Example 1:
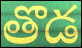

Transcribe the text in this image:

తొడ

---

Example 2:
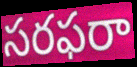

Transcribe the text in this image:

సరఫరా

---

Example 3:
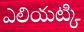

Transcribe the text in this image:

ఎలియట్కి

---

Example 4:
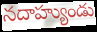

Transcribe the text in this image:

నదాహ్యుండు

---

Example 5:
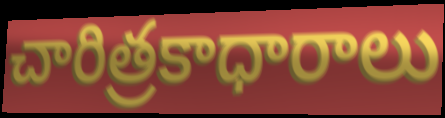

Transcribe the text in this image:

చారిత్రకాధారాలు